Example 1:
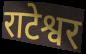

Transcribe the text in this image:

राटेश्वर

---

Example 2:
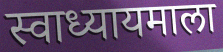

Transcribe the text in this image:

स्वाध्यायमाला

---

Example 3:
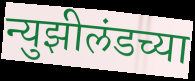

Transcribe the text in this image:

न्युझीलंडच्या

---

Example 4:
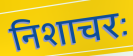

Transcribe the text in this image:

निशाचरः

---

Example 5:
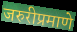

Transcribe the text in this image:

जरुरीप्रमाणे